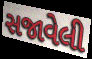
સજાવેલી